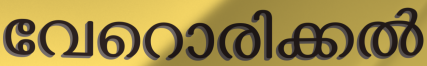
വേറൊരിക്കൽ